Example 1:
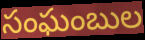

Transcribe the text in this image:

సంఘంబుల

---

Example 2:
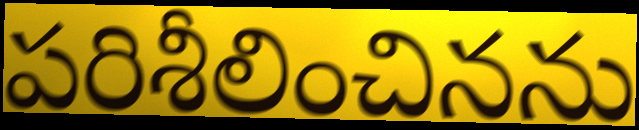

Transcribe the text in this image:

పరిశీలించినను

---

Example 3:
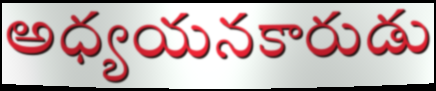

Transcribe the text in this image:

అధ్యయనకారుడు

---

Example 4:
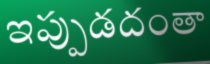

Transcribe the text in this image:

ఇప్పుడదంతా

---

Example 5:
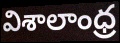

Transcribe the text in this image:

విశాలాంధ్ర